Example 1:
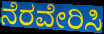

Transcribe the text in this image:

ನೆರವೇರಿಸಿ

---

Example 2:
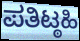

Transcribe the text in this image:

ಪತಿಟ್ಠಹಿ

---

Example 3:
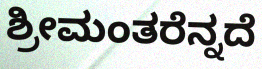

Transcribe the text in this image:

ಶ್ರೀಮಂತರೆನ್ನದೆ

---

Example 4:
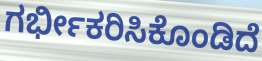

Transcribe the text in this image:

ಗರ್ಭೀಕರಿಸಿಕೊಂಡಿದೆ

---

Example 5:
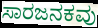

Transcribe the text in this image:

ಸಾರಜನಕವು